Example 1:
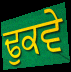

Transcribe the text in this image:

ਢੁਕਵੇ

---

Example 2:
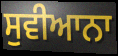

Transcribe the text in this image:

ਸੁਵੀਆਨਾ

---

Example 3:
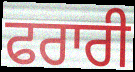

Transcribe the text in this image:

ਫਰਾਰੀ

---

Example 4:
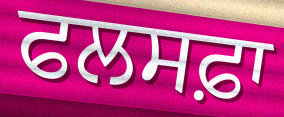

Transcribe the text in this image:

ਫਲਸਫ਼ਾ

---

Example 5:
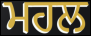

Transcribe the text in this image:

ਮਹਲ